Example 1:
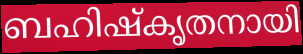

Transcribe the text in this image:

ബഹിഷ്കൃതനായി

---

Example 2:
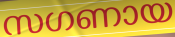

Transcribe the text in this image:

സഗണായ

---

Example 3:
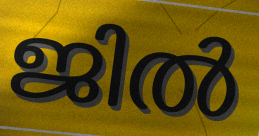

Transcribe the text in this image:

ജിൽ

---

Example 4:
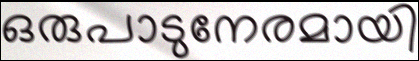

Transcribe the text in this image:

ഒരുപാടുനേരമായി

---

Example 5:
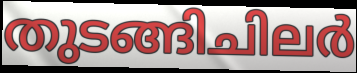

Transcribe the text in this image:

തുടങ്ങിചിലർ